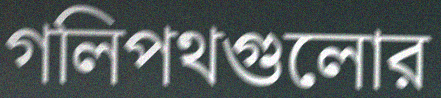
গলিপথগুলোর